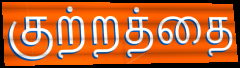
குற்றத்தை